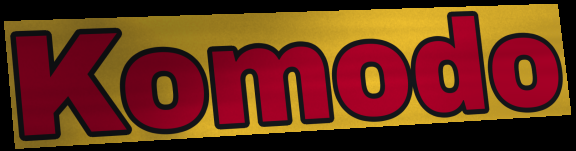
Komodo